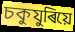
চকুযুৰিয়ে